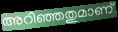
അറിഞ്ഞതുമാണ്